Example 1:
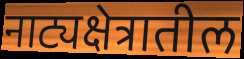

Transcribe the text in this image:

नाट्यक्षेत्रातील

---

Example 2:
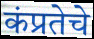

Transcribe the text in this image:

कंप्रतेचे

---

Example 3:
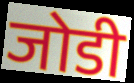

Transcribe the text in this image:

जोडी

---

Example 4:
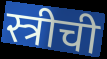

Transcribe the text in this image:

स्त्रीची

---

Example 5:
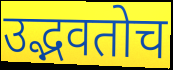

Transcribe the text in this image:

उद्भवतोच